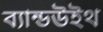
ব্যান্ডউইথ